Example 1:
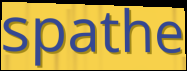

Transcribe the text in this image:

spathe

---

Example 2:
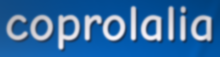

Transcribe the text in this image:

coprolalia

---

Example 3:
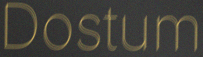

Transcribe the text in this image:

Dostum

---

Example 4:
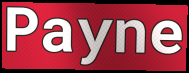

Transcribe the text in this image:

Payne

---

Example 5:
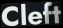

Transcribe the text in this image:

Cleft